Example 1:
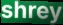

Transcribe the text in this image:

shrey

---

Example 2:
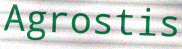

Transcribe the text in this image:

Agrostis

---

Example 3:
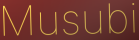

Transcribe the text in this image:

Musubi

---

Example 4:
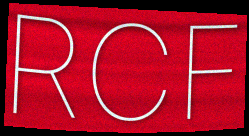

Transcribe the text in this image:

RCF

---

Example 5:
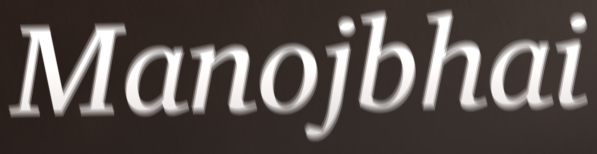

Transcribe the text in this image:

Manojbhai